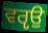
ਵਰੵਉ